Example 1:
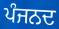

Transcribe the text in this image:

ਪੰਜਨਦ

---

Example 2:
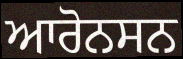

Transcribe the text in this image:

ਆਰੋਨਸਨ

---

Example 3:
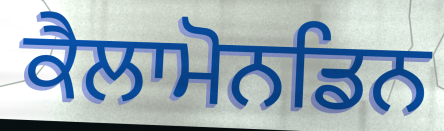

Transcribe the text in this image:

ਕੈਲਾਮੋਨਡਿਨ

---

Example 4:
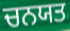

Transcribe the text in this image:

ਚਨਯਤ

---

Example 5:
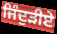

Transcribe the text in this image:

ਜਿੰਦੁੜੀਏ